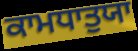
ਕਾਮਧਾਤੁਯਾ